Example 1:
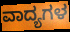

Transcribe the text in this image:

ವಾದ್ಯಗಳ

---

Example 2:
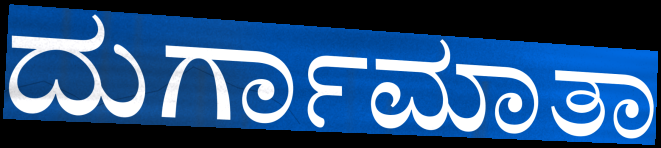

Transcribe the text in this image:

ದುರ್ಗಾಮಾತಾ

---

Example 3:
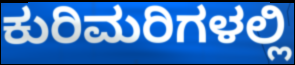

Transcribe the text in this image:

ಕುರಿಮರಿಗಳಲ್ಲಿ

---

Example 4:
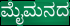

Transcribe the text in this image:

ಮೈಮನದ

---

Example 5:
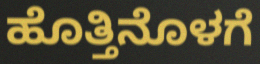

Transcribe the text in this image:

ಹೊತ್ತಿನೊಳಗೆ